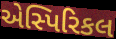
એસ્પિરિકલ